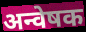
अन्वेषक